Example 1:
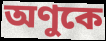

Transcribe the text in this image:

অণুকে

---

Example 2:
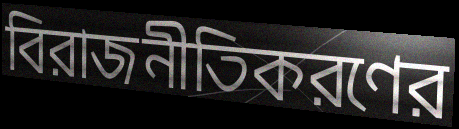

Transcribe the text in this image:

বিরাজনীতিকরণের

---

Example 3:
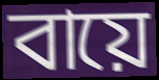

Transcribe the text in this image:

বায়ে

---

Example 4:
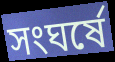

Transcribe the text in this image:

সংঘর্ষে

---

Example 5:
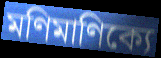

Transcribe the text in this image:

মণিমাণিক্যে